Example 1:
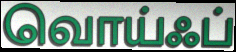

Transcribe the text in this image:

வொய்ஃப்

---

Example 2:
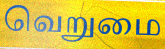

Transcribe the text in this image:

வெறுமை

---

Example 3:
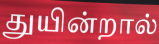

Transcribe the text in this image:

துயின்றால்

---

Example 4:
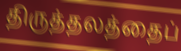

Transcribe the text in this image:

திருத்தலத்தைப்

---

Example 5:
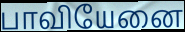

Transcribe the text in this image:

பாவியேனை